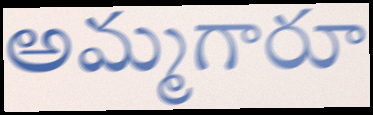
అమ్మగారూ